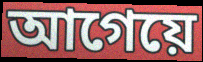
আগেয়ে